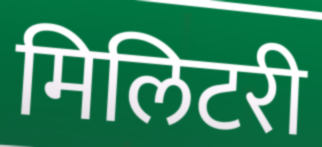
मिलिटरी